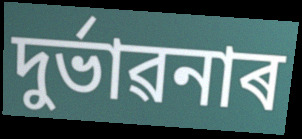
দুৰ্ভাৱনাৰ